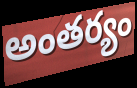
అంతర్యం